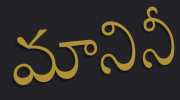
మానినీ